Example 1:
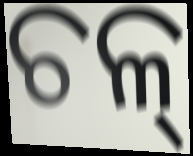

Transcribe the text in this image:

ଚଳ୍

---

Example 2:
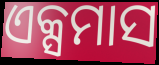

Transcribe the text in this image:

ଏକ୍ସମାସ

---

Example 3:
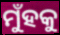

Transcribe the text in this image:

ମୁଁହକୁ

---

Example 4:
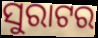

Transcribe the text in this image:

ସୁରାଟର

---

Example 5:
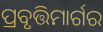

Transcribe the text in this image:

ପ୍ରବୃତ୍ତିମାର୍ଗର